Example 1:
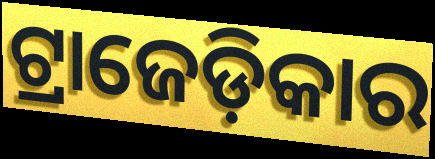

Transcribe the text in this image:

ଟ୍ରାଜେଡ଼ିକାର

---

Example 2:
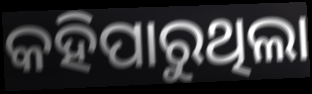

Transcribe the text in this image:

କହିପାରୁଥିଲା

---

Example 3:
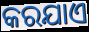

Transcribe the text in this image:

କରଯାଏ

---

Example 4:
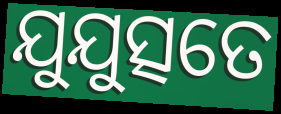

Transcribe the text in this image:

ଯୁଯୁତ୍ସତେ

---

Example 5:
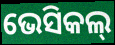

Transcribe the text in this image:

ଭେସିକଲ୍